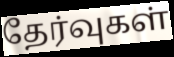
தேர்வுகள்